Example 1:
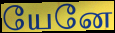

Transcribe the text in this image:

யேனே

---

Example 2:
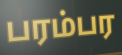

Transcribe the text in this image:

பரம்பர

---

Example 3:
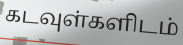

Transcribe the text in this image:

கடவுள்களிடம்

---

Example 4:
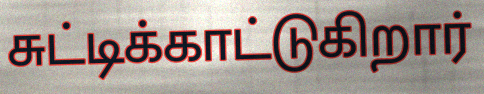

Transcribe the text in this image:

சுட்டிக்காட்டுகிறார்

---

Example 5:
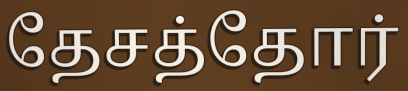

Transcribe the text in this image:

தேசத்தோர்